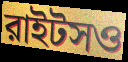
রাইটসও